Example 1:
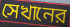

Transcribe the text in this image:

সেখানের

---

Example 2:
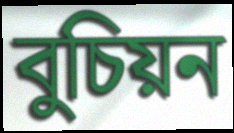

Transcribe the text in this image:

বুচিয়ন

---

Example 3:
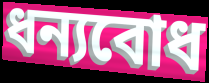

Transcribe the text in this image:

ধন্যবোধ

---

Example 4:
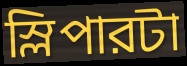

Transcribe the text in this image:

স্লিপারটা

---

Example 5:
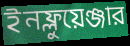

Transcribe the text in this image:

ইনফ্লুয়েঞ্জার